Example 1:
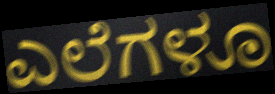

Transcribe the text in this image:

ಎಲೆಗಳೂ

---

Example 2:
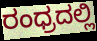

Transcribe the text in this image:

ರಂಧ್ರದಲ್ಲಿ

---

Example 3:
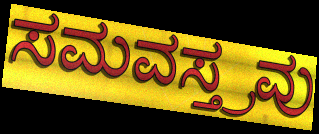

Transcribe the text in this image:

ಸಮವಸ್ತ್ರವು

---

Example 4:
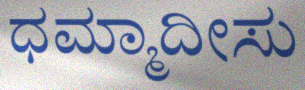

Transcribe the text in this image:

ಧಮ್ಮಾದೀಸು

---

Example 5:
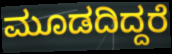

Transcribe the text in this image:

ಮೂಡದಿದ್ದರೆ